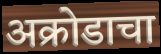
अक्रोडाचा